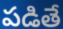
పడితే